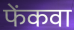
फेंकवा